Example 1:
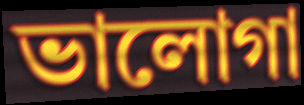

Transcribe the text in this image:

ভালোগা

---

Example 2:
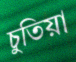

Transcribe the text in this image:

চুতিয়া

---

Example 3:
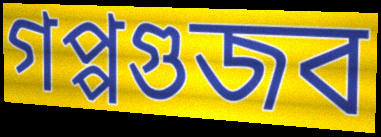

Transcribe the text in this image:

গপ্পগুজব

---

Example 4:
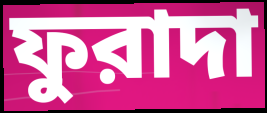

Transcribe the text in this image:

ফুরাদা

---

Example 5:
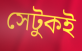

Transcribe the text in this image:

সেটুকই